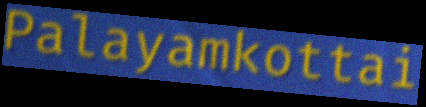
Palayamkottai